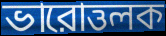
ভারোত্তলক